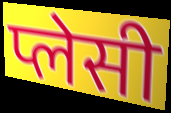
प्लेसी